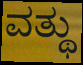
ವತ್ಥು